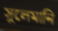
সুলেমানি